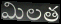
మిలత